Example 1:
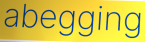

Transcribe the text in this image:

abegging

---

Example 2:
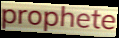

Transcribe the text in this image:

prophete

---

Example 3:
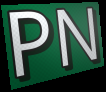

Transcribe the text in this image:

PN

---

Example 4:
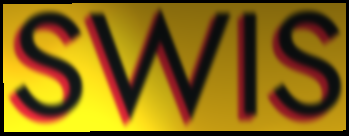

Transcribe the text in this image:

SWIS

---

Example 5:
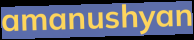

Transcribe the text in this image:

amanushyan